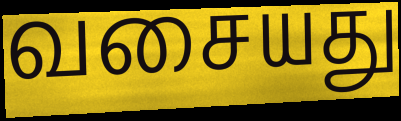
வசையது